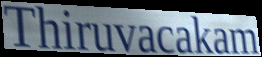
Thiruvacakam